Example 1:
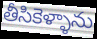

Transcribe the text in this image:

తీసికెళ్ళాను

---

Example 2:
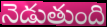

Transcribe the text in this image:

నెడుతుంది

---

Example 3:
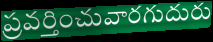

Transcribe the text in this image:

ప్రవర్తించువారగుదురు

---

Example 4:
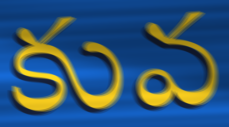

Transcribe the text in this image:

కువ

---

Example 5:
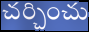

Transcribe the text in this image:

చర్చించు